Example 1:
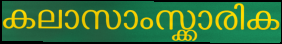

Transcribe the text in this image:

കലാസാംസ്ക്കാരിക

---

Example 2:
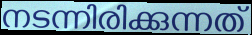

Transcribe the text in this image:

നടന്നിരിക്കുന്നത്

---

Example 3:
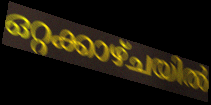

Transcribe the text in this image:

ഒറ്റക്കാഴ്ചയിൽ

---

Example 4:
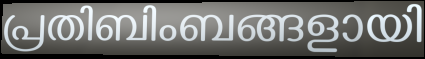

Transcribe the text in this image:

പ്രതിബിംബങ്ങളായി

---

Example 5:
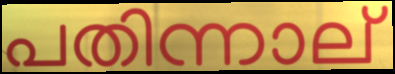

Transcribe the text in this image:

പതിന്നാല്